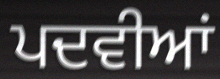
ਪਦਵੀਆਂ